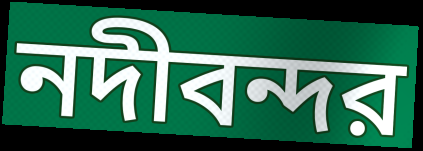
নদীবন্দর